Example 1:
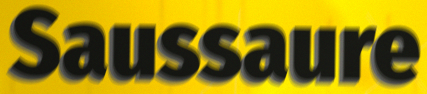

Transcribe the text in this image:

Saussaure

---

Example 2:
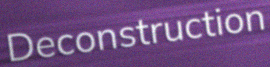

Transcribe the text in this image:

Deconstruction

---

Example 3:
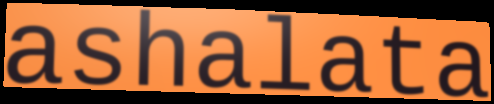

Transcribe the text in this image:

ashalata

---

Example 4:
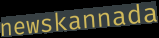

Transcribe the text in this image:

newskannada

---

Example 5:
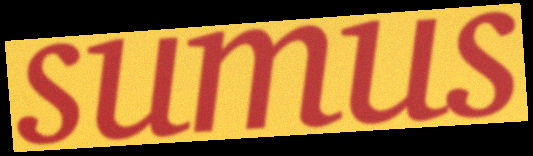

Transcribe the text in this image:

sumus